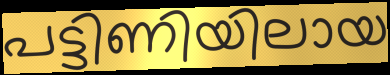
പട്ടിണിയിലായ